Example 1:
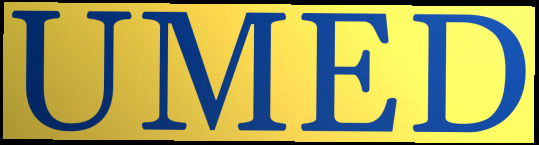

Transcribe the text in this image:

UMED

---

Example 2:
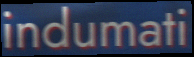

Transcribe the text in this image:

indumati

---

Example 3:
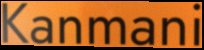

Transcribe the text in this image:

Kanmani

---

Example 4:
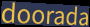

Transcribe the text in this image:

doorada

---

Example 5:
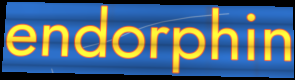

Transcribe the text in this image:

endorphin